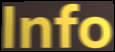
Info